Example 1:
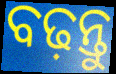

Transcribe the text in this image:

ବଢ଼ନ୍ତୁ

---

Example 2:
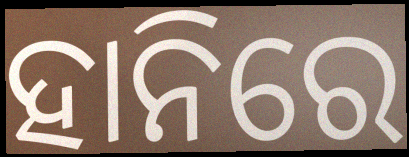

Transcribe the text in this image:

ହାନିରେ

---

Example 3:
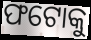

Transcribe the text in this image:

ଫଟୋକୁ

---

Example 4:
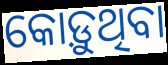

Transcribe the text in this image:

କୋଡ଼ୁଥିବା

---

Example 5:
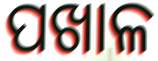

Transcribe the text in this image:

ପଖାଳ